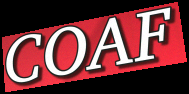
COAF